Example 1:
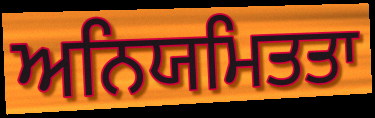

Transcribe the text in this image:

ਅਨਿਯਮਿਤਤਾ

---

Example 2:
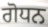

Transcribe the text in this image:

ਗੋਧਨ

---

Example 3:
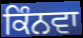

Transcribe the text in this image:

ਕਿੰਨਵਾ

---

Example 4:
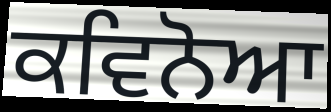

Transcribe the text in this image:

ਕਵਿਨੋਆ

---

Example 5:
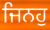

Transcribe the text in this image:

ਜਿਨਹੁ